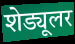
शेड्यूलर